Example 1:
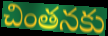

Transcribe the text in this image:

చింతనకు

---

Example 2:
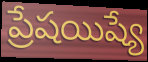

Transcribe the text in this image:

ప్రేషయిష్యే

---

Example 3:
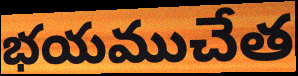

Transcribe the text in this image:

భయముచేత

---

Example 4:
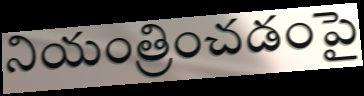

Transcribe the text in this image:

నియంత్రించడంపై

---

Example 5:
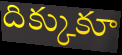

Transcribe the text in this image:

దిక్కుకూ